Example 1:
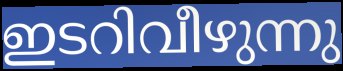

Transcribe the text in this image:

ഇടറിവീഴുന്നു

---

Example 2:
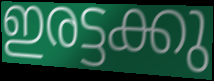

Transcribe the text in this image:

ഇരട്ടക്കു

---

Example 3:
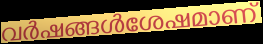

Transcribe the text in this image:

വർഷങ്ങൾശേഷമാണ്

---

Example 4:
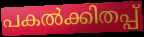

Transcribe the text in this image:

പകൽക്കിതപ്പ്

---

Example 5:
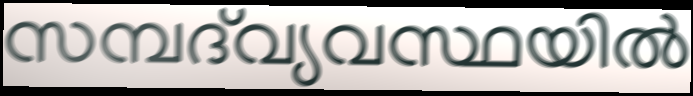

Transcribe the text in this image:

സമ്പദ്‌വ്യവസ്ഥയിൽ